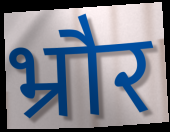
भ्रौर